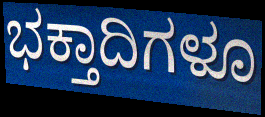
ಭಕ್ತಾದಿಗಳೂ